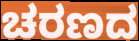
ಚರಣದ